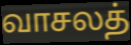
வாசலத்